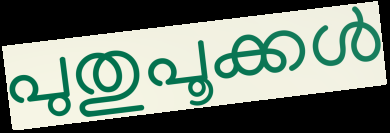
പുതുപൂക്കൾ